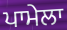
ਪਾਮੇਲਾ